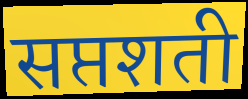
सप्तशती